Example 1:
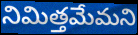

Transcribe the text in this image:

నిమిత్తమేమని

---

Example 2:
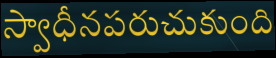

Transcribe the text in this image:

స్వాధీనపరుచుకుంది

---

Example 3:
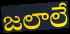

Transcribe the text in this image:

జలాలే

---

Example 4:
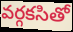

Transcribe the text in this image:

వర్గకసితో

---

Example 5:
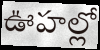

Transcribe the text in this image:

ఊహల్లో